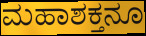
ಮಹಾಶಕ್ತನೂ